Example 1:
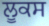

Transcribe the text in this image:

ਲੂਕਸ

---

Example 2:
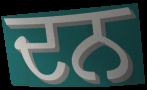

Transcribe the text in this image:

ਦਨ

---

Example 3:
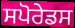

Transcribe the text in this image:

ਸਪੋਰੇਡਸ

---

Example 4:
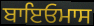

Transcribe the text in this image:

ਬਾਇਓਮਾਸ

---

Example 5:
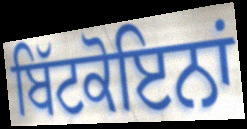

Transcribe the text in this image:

ਬਿੱਟਕੋਇਨਾਂ